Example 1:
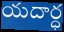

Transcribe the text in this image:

యదార్ధ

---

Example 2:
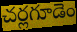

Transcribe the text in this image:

చర్లగూడెం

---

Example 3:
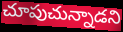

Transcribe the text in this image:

చూపుచున్నాడని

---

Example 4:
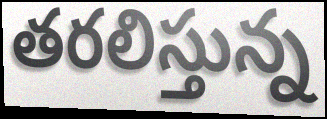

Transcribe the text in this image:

తరలిస్తున్న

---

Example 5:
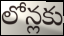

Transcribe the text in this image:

లోన్లకు